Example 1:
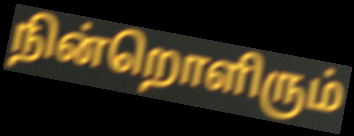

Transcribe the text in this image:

நின்றொளிரும்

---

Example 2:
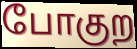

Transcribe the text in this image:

போகுற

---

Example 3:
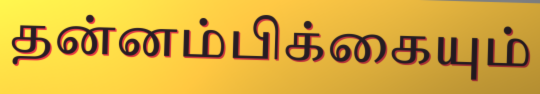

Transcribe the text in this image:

தன்னம்பிக்கையும்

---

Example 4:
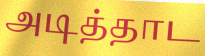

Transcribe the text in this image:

அடித்தாட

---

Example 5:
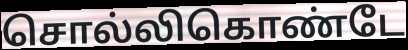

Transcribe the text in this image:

சொல்லிகொண்டே